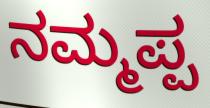
ನಮ್ಮಪ್ಪ